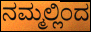
ನಮ್ಮಲ್ಲಿಂದ